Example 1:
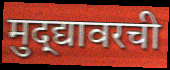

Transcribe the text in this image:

मुद्द्यावरची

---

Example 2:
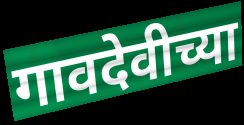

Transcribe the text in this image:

गावदेवीच्या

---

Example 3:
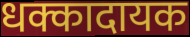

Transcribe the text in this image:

धक्कादायक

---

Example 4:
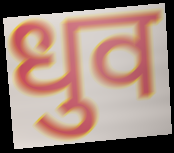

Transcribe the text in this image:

धुव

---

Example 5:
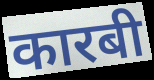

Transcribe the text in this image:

कारबी